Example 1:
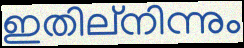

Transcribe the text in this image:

ഇതില്നിന്നും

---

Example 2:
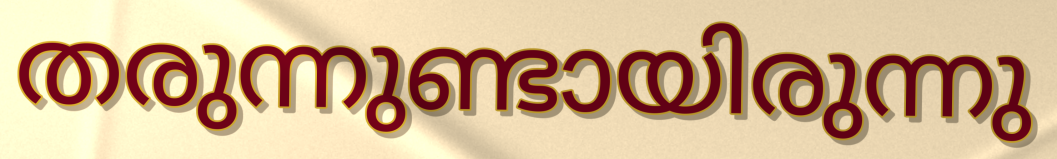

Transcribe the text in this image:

തരുന്നുണ്ടായിരുന്നു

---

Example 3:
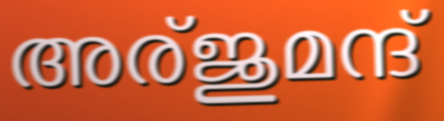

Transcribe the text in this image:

അര്ജുമന്ദ്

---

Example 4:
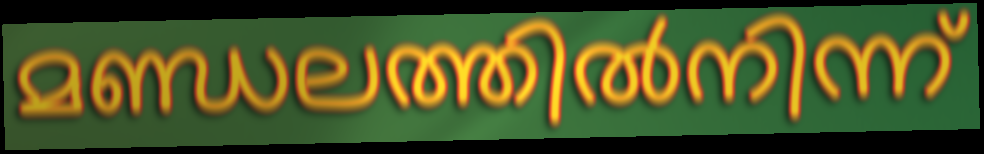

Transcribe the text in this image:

മണ്ഡലത്തിൽനിന്ന്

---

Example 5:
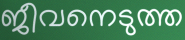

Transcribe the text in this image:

ജീവനെടുത്ത